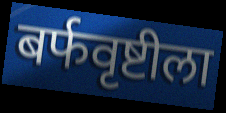
बर्फवृष्टीला